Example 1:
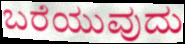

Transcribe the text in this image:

ಬರೆಯುವುದು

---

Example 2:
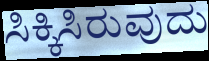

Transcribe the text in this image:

ಸಿಕ್ಕಿಸಿರುವುದು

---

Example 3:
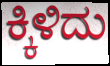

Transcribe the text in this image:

ಕ್ಕಿಳಿದು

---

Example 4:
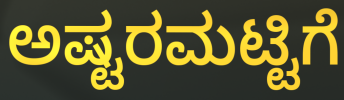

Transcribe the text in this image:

ಅಷ್ಟರಮಟ್ಟಿಗೆ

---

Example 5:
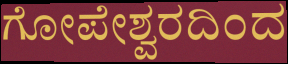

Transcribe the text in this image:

ಗೋಪೇಶ್ವರದಿಂದ